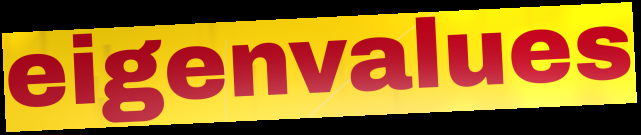
eigenvalues